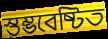
স্তম্ভবেষ্টিত